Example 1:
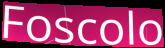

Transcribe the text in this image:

Foscolo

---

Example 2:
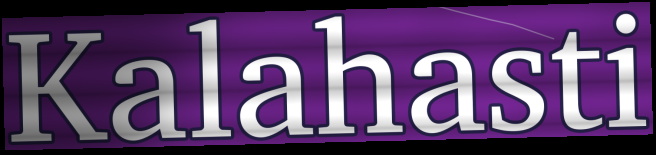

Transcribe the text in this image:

Kalahasti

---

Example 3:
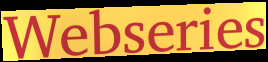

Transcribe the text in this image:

Webseries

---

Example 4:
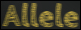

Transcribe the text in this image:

Allele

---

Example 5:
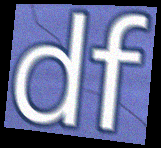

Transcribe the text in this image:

df